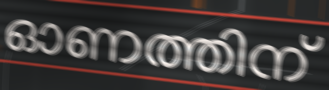
ഓണത്തിന്